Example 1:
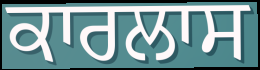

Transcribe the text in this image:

ਕਾਰਲਾਸ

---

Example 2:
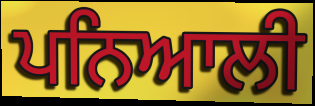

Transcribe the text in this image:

ਪਨਿਆਲੀ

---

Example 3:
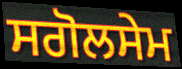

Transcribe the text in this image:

ਸਗੋਲਸੇਮ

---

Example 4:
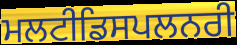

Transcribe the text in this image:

ਮਲਟੀਡਿਸਪਲਨਰੀ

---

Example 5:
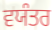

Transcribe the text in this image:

ਵਯੰਤਰ